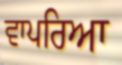
ਵਾਪਰਿਆ